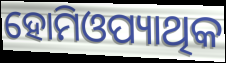
ହୋମିଓପ୍ୟାଥିକ